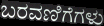
ಬರವಣಿಗೆಗಳು